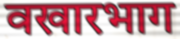
वखारभाग